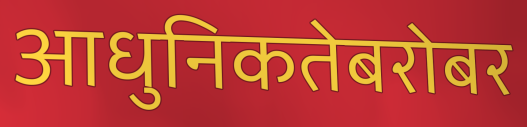
आधुनिकतेबरोबर